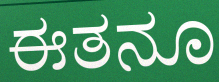
ಈತನೂ